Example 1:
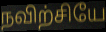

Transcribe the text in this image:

நவிற்சியே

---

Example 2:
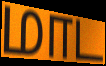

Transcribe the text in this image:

மாட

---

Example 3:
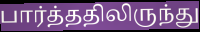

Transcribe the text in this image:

பார்த்ததிலிருந்து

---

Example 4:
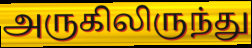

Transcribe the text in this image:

அருகிலிருந்து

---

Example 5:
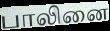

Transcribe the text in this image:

பாலினை